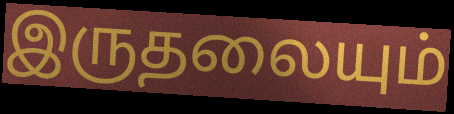
இருதலையும்